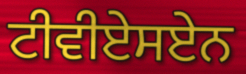
ਟੀਵੀਏਸਏਨ